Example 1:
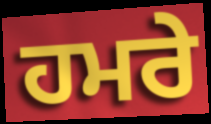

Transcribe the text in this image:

ਹਮਰੇ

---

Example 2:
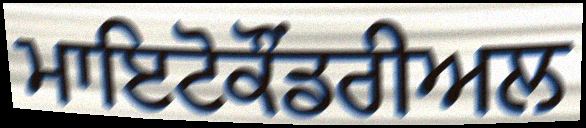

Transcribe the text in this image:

ਮਾਇਟੋਕੌਂਡਰੀਅਲ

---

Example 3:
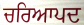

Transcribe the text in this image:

ਚਰਿਆਪਦ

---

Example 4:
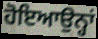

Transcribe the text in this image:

ਹੋਇਆਉਨ੍ਹਾਂ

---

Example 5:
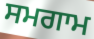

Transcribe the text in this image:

ਸਮਗਾਮ